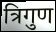
त्रिगुण